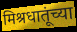
मिश्रधातूंच्या